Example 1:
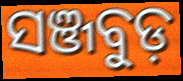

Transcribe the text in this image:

ସଞ୍ଜବୁଡ଼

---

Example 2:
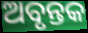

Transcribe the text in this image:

ଅବୃନ୍ତକ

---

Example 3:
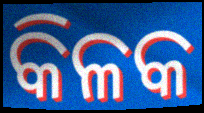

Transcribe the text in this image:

କିଳକ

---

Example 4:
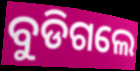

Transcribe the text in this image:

ବୁଡିଗଲେ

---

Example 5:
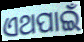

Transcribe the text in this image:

ଏଥପାଇଁ